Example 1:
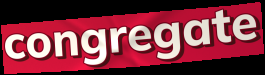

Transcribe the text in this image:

congregate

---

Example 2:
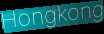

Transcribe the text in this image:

Hongkong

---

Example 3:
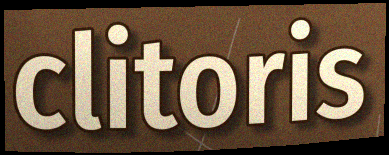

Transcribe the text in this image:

clitoris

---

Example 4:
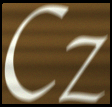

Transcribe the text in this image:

Cz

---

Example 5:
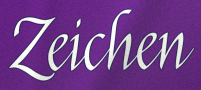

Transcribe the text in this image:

Zeichen